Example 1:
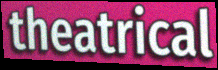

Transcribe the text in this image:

theatrical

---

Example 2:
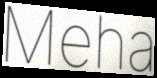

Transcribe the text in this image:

Meha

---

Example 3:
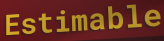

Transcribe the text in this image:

Estimable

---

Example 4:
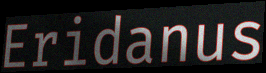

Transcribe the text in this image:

Eridanus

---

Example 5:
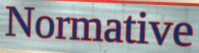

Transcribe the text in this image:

Normative